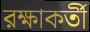
রক্ষাকর্তী